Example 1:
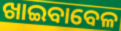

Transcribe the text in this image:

ଖାଇବାବେଳ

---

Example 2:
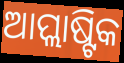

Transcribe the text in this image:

ଆପ୍ଲାଷ୍ଟିକ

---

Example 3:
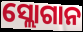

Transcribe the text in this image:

ସ୍ଲୋଗାନ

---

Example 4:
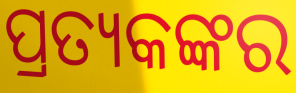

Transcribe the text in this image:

ପ୍ରତ୍ୟକଙ୍କର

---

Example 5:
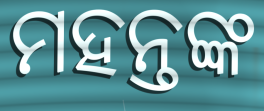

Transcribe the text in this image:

ମହନ୍ତଙ୍କ